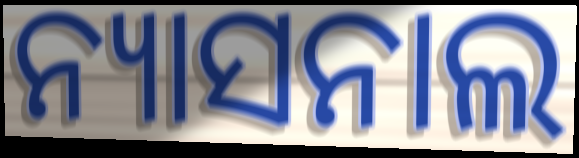
ନ୍ୟାସନାଲ